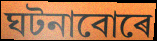
ঘটনাবোৰে